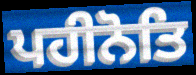
ਪਹੀਨੋਤਿ